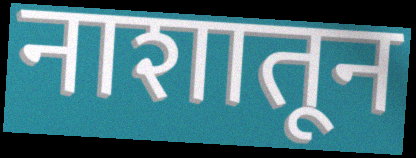
नाशातून